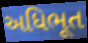
અધિભૂત